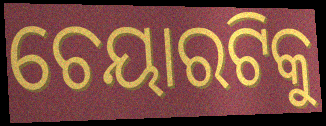
ଚେୟାରଟିକୁ